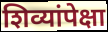
शिव्यांपेक्षा